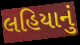
લહિયાનું